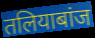
तलियाबांज